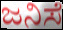
ಜನಿಸೆ